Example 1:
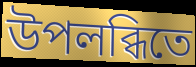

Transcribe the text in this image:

উপলব্ধিতে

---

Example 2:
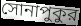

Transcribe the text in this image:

সোনাপুকুর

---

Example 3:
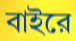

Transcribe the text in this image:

বাইরে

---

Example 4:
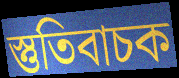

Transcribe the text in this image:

স্তুতিবাচক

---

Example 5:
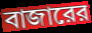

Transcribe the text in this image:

বাজারের